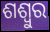
ଶଶ୍ୱୁର